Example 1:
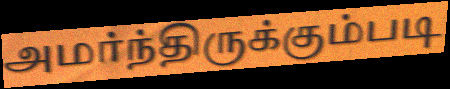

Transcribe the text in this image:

அமர்ந்திருக்கும்படி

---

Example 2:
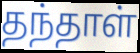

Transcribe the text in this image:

தந்தாள்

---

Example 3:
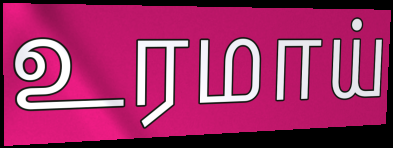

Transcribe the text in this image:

உரமாய்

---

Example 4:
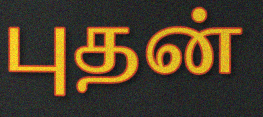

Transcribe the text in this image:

புதன்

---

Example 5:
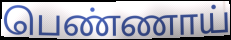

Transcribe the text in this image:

பெண்ணாய்